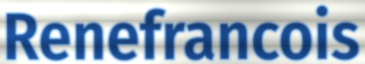
Renefrancois